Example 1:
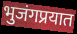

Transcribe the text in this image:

भुजंगप्रयात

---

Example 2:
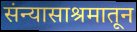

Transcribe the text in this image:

संन्यासाश्रमातून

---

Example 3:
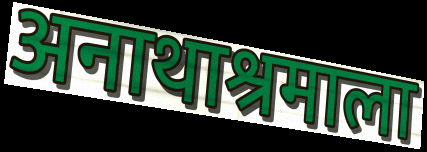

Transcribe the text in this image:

अनाथाश्रमाला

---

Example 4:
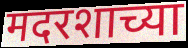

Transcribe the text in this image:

मदरशाच्या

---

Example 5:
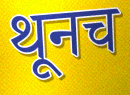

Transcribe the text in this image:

थूनच